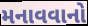
મનાવવાનો